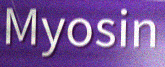
Myosin